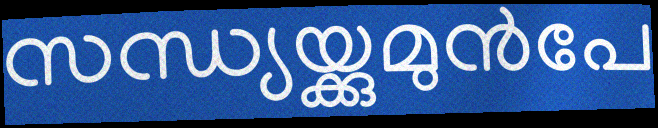
സന്ധ്യയ്ക്കുമുൻപേ